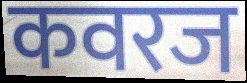
कवरज